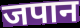
जपान